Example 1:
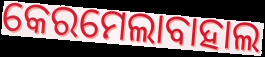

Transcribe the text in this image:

କେରମେଲାବାହାଲ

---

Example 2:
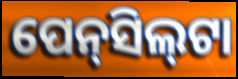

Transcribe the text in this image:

ପେନ୍‌ସିଲ୍‍ଟା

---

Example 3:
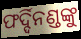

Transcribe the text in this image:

ଫର୍ଦ୍ଦିନଣ୍ଡଙ୍କୁ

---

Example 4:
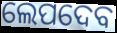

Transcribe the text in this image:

ଲେପଦେବ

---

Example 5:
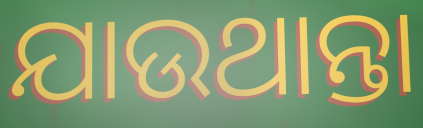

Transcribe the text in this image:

ଯାଉଥାନ୍ତା